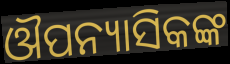
ଔପନ୍ୟାସିକଙ୍କ